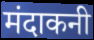
मंदाकनी